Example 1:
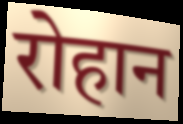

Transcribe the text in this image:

रोहान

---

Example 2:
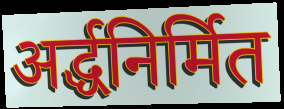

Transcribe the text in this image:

अर्द्धनिर्मित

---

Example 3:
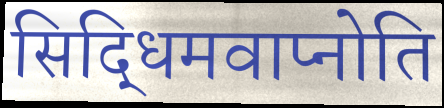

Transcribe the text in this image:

सिद्धिमवाप्नोति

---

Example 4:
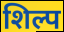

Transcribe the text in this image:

शिल्प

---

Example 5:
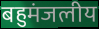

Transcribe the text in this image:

बहुमंजलीय